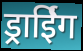
ड्राईिंग